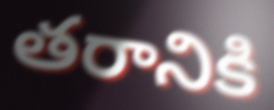
తరానికి